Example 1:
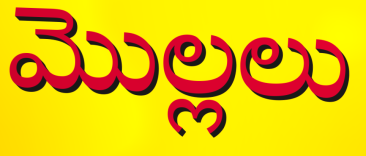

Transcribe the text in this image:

మొల్లలు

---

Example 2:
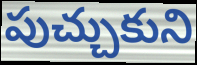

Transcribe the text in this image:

పుచ్చుకుని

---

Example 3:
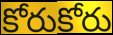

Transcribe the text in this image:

కోరుకోరు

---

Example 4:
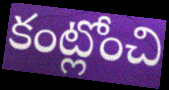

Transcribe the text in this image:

కంట్లోంచి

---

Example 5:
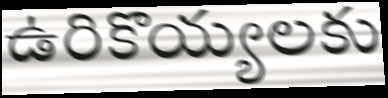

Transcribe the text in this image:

ఉరికొయ్యలకు